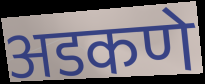
अडकणे